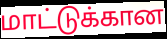
மாட்டுக்கான